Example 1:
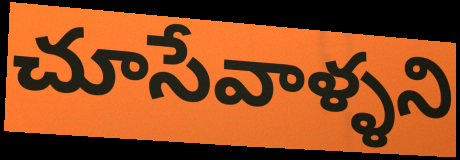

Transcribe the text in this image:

చూసేవాళ్ళని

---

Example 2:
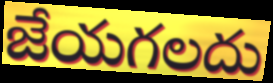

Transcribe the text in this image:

జేయగలదు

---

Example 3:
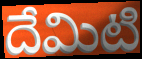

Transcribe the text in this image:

దేమిటి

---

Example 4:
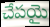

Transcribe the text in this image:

చేపయై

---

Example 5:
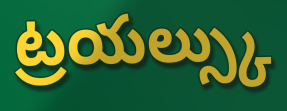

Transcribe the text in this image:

ట్రయల్స్కు